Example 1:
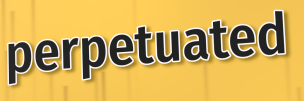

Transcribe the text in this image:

perpetuated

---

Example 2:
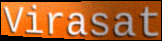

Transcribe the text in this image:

Virasat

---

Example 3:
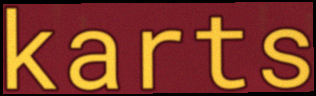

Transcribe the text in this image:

karts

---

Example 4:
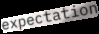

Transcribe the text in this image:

expectation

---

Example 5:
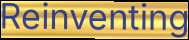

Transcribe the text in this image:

Reinventing